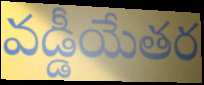
వడ్డీయేతర